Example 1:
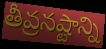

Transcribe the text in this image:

తీవ్రనష్టాన్ని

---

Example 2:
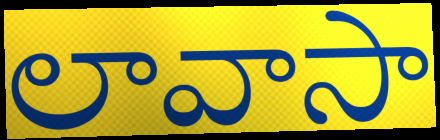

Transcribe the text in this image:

లావాసా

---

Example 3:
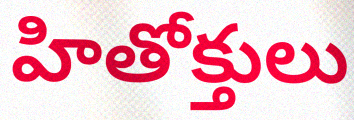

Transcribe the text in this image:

హితోక్తులు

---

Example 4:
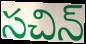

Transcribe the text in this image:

సచిన్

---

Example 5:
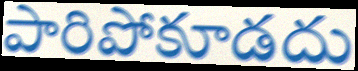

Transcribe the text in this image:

పారిపోకూడదు